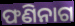
ଫଣିନାଗ